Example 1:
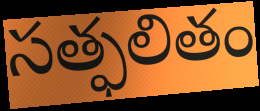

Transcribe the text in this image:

సత్ఫలితం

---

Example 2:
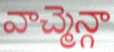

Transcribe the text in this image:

వాచ్మెన్గా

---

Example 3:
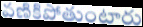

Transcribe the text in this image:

వణికిపోతుంటారు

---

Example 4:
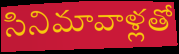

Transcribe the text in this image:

సినిమావాళ్లతో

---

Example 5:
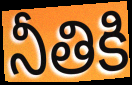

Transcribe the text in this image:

నీతికి